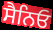
ਸੈਨਿਓ